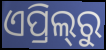
ଏପ୍ରିଲ୍‍ରୁ